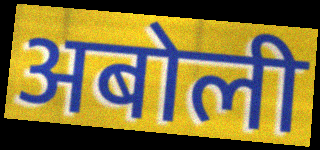
अबोली